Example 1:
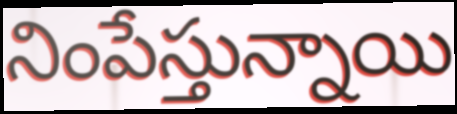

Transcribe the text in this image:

నింపేస్తున్నాయి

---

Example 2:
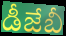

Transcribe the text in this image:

డీజేబీ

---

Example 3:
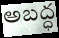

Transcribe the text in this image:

అబద్ధ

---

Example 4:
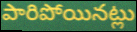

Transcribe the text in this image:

పారిపోయినట్లు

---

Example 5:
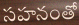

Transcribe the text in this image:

సహనంతో